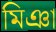
মিঞা